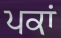
ਪਕਾਂ